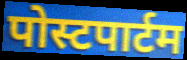
पोस्टपार्टम